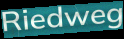
Riedweg